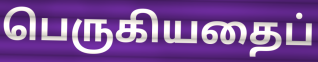
பெருகியதைப்